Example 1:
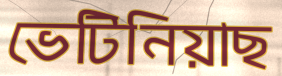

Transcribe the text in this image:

ভেটিনিয়াছ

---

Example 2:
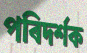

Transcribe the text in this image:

পৰিদৰ্শক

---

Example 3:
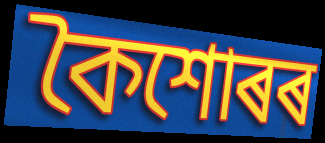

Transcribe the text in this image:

কৈশোৰৰ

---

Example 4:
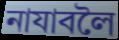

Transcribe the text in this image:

নাযাবলৈ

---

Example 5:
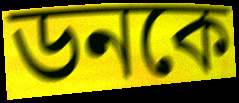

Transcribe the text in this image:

ডনকে